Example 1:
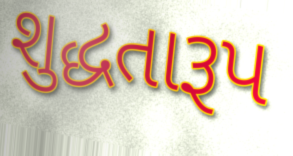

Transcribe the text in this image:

શુદ્ધતારૂપ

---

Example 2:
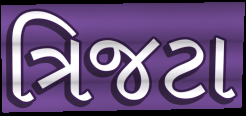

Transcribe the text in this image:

ત્રિજટા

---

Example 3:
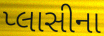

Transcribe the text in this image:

પ્લાસીના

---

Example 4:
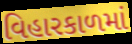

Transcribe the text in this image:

વિહારકાળમાં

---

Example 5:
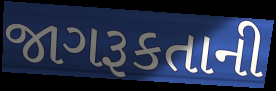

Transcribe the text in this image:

જાગરૂકતાની